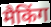
मैकिंग